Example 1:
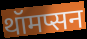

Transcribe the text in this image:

थॉमप्सन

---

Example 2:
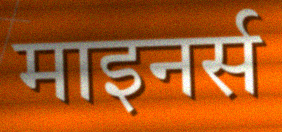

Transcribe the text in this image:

माइनर्स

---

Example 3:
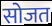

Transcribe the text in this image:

सोजत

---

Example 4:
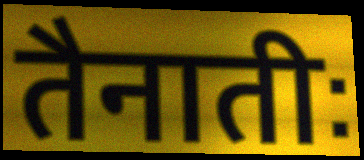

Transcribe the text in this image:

तैनातीः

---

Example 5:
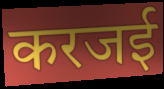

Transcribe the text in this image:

करजई